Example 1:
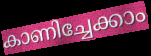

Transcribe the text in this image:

കാണിച്ചേക്കാം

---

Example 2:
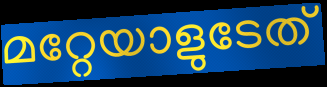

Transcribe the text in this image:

മറ്റേയാളുടേത്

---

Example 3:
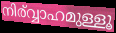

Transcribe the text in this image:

നിര്വ്വാഹമുള്ളൂ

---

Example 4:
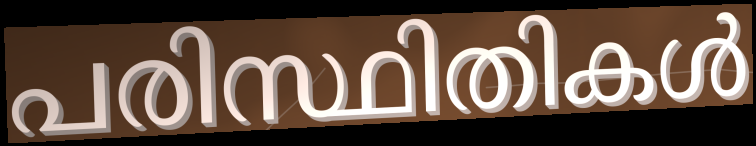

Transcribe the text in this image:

പരിസ്ഥിതികൾ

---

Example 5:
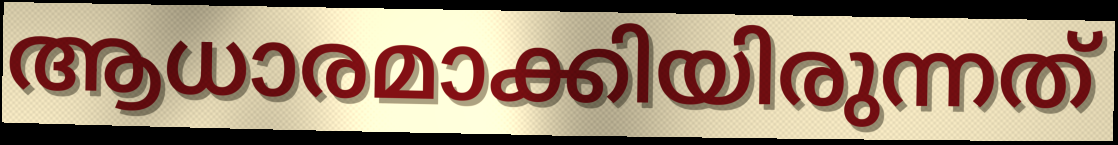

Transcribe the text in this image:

ആധാരമാക്കിയിരുന്നത്